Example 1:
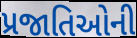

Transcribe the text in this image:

પ્રજાતિઓની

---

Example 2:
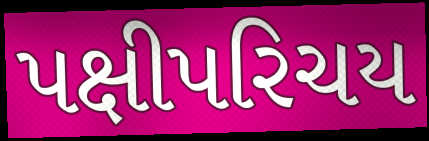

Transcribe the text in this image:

પક્ષીપરિચય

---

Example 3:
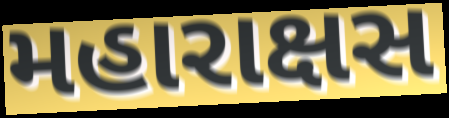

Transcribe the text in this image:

મહારાક્ષસ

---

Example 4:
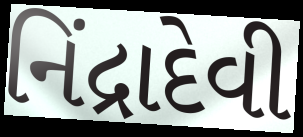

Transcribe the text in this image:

નિંદ્રાદેવી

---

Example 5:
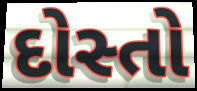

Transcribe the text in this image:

દોસ્તો